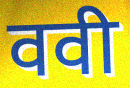
ववी